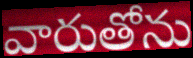
వారుతోను